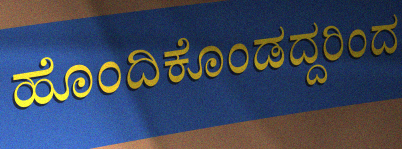
ಹೊಂದಿಕೊಂಡದ್ದರಿಂದ